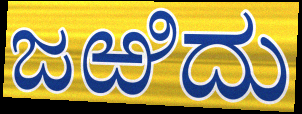
ಜಱಿದು